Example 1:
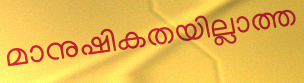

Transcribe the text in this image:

മാനുഷികതയില്ലാത്ത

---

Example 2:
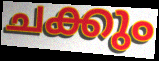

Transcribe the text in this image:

ചക്കും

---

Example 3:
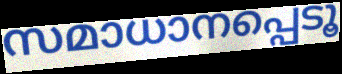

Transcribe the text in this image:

സമാധാനപ്പെടൂ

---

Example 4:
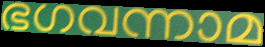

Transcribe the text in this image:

ഭഗവന്നാമ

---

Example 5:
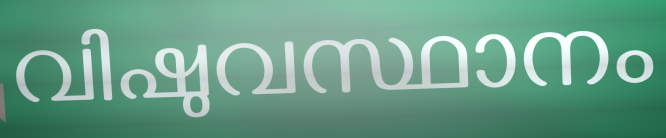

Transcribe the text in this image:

വിഷുവസ്ഥാനം